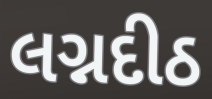
લગ્નદીઠ